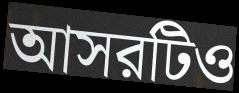
আসরটিও